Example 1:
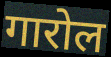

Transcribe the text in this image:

गारोल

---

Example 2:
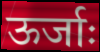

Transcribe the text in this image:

ऊर्जाः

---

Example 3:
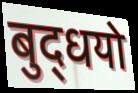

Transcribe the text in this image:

बुद्धयो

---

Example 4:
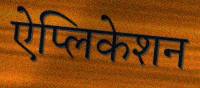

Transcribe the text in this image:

ऐप्लिकेशन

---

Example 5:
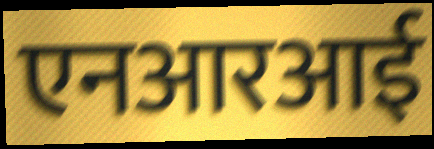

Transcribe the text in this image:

एनआरआई